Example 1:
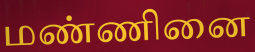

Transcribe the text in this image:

மண்ணினை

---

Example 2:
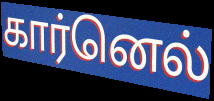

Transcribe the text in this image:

கார்னெல்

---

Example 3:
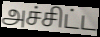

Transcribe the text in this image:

அச்சிட்ட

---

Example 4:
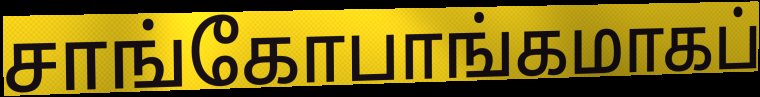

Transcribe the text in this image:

சாங்கோபாங்கமாகப்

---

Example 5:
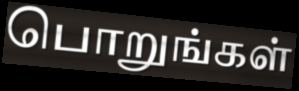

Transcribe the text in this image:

பொறுங்கள்